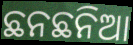
ଛନଛନିଆ